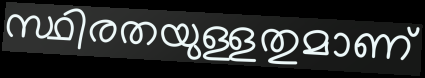
സ്ഥിരതയുള്ളതുമാണ്